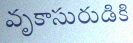
వృకాసురుడికి